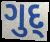
ગુદ્